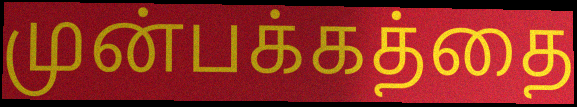
முன்பக்கத்தை